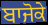
ਬਾਜੋਕੇ